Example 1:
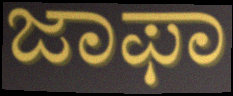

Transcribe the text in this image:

ಜಾಫಾ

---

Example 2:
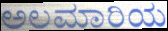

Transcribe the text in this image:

ಅಲಮಾರಿಯ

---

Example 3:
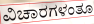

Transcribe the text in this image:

ವಿಚಾರಗಳಂತೂ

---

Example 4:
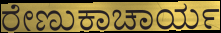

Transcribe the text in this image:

ರೇಣುಕಾಚಾರ್ಯ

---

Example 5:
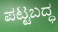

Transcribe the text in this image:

ಪಟ್ಟಬದ್ಧ